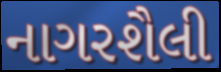
નાગરશૈલી